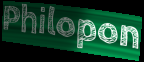
Philopon